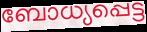
ബോധ്യപ്പെട്ട